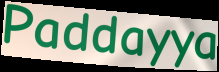
Paddayya